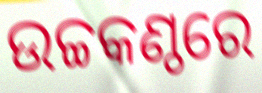
ଉଚ୍ଚକଣ୍ଠରେ